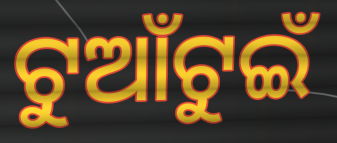
ଟୁଆଁଟୁଇଁ